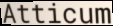
Atticum